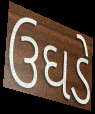
ઉઘડે